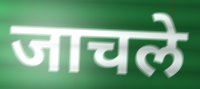
जाचले